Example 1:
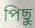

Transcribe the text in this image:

পিছু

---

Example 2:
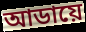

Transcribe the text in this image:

আডায়ে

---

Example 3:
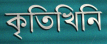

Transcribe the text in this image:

কৃতিখিনি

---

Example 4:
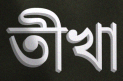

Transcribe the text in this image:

তীখা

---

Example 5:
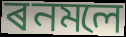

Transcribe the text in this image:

ৰনমলে